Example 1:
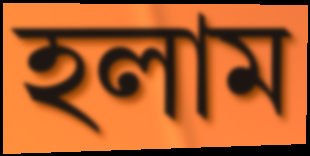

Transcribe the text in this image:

হলাম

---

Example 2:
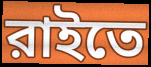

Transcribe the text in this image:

রাইতে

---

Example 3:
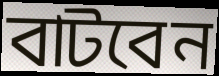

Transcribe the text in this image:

বাটবেন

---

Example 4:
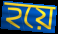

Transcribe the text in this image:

হয়ে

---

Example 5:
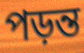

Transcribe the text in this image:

পড়ন্ত